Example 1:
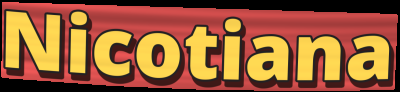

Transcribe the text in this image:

Nicotiana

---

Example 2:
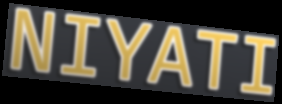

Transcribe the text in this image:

NIYATI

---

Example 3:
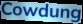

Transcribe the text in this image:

Cowdung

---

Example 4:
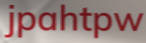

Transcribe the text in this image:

jpahtpw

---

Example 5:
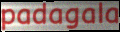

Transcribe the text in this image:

padagala